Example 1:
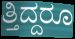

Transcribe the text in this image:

ತ್ತಿದ್ದರೂ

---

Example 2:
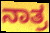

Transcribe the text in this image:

ನಾತ್ರ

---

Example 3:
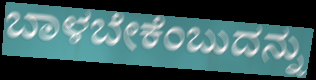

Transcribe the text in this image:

ಬಾಳಬೇಕೆಂಬುದನ್ನು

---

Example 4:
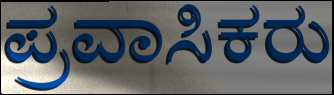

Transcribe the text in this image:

ಪ್ರವಾಸಿಕರು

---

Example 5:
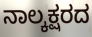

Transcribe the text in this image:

ನಾಲ್ಕಕ್ಷರದ